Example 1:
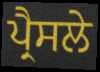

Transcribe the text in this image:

ਪ੍ਰੈਸਲੇ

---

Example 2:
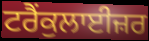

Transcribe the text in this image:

ਟਰੈਂਕੁਲਾਈਜ਼ਰ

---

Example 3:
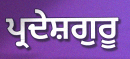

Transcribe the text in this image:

ਪ੍ਰਦੇਸ਼ਗੁਰੂ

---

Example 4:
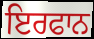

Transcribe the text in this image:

ਇਰਫਾਨ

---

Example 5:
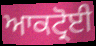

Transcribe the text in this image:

ਆਕਟ੍ਰੋਈ